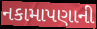
નકામાપણાની